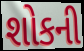
શોકની